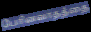
பேரினவாதத்தை